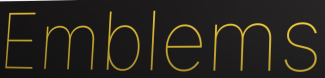
Emblems